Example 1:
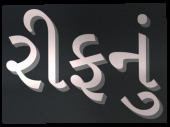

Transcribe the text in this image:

રીફનું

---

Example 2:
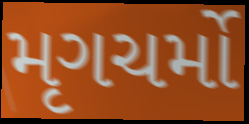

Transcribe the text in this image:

મૃગચર્મો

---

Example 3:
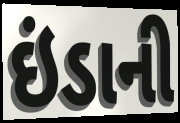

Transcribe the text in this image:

ઇંડાની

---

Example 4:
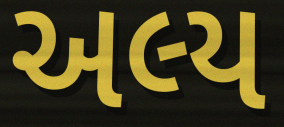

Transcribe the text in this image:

અલ્ય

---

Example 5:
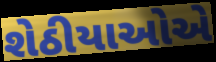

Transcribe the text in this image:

શેઠીયાઓએ